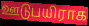
ஊடுபயிராக